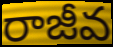
రాజీవ